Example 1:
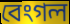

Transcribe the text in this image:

বেংগল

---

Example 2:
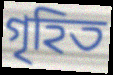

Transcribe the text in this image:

গৃহিত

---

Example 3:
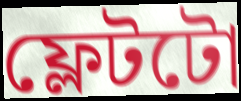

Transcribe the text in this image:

ফ্লেটটো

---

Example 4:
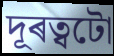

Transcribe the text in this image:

দূৰত্বটো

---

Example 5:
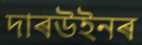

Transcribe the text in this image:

দাৰউইনৰ